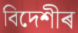
বিদেশীৰ